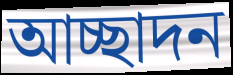
আচ্ছাদন